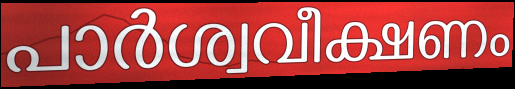
പാർശ്വവീക്ഷണം